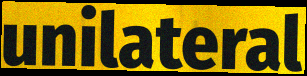
unilateral